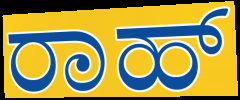
ರಾಹ್